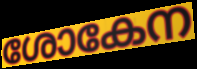
ശോകേന